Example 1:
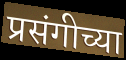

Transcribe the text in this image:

प्रसंगीच्या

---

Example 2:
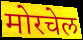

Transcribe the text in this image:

मोरचेल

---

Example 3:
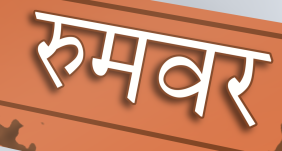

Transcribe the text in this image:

रुमवर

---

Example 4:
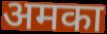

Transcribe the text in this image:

अमका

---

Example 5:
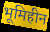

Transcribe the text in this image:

भूमिहीन